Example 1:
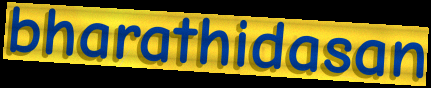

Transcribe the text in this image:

bharathidasan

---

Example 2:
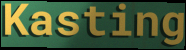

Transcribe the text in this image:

Kasting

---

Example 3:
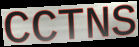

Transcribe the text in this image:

CCTNS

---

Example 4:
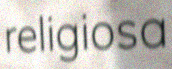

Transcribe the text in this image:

religiosa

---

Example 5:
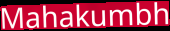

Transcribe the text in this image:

Mahakumbh